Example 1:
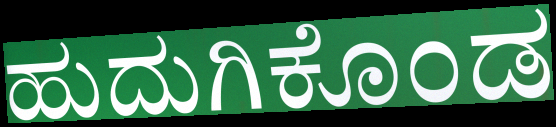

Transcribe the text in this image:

ಹುದುಗಿಕೊಂಡ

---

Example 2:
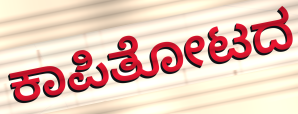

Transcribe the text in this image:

ಕಾಪಿತೋಟದ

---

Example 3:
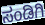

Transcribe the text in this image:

ಸಂಡಿಗಿ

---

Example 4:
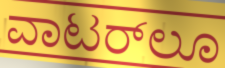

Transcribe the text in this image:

ವಾಟರ್‌ಲೂ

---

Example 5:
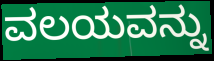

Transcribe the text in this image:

ವಲಯವನ್ನು